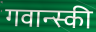
गवान्स्की